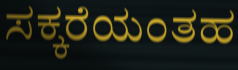
ಸಕ್ಕರೆಯಂತಹ